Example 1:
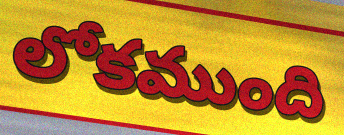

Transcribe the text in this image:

లోకముంది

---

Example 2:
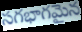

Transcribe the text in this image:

సగభాగమైన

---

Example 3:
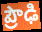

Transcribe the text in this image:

ప్రౌఢి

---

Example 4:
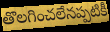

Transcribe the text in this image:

తొలగించలేనప్పటికీ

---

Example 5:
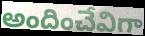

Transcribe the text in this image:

అందించేవిగా